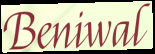
Beniwal